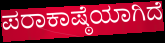
ಪರಾಕಾಷ್ಠೆಯಾಗಿದೆ